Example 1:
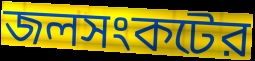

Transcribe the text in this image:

জলসংকটের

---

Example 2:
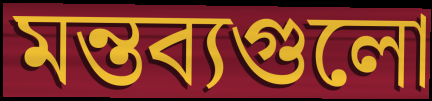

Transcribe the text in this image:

মন্তব্যগুলো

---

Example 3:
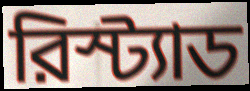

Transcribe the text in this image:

রিস্ট্যাড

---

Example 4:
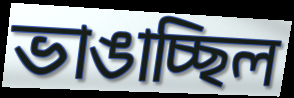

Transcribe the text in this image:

ভাঙাচ্ছিল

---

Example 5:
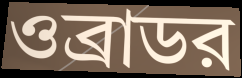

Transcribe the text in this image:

ওব্রাডর